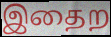
இதைற